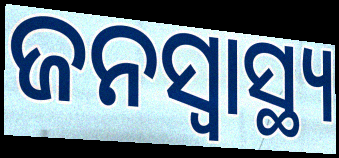
ଜନସ୍ବାସ୍ଥ୍ୟ